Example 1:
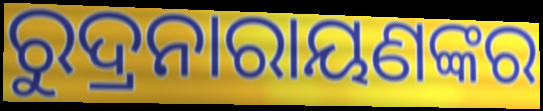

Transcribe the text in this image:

ରୁଦ୍ରନାରାୟଣଙ୍କର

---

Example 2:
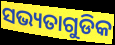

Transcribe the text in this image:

ସଭ୍ୟତାଗୁଡିକ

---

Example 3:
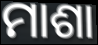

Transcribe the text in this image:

ମାଶା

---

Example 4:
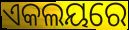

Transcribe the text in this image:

ଏକଲୟରେ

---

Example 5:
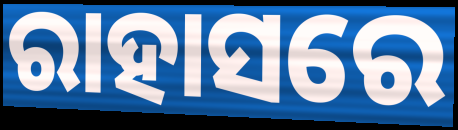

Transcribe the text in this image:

ରାହାସରେ